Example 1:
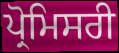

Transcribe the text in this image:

ਪ੍ਰੋਮਿਸਰੀ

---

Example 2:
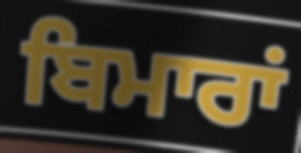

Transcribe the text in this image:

ਬਿਮਾਰਾਂ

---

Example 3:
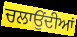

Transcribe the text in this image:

ਚਲਾਉਂਦੀਆਂ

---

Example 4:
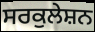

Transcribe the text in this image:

ਸਰਕੁਲੇਸ਼ਨ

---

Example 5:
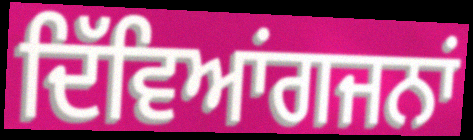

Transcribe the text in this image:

ਦਿੱਵਿਆਂਗਜਨਾਂ